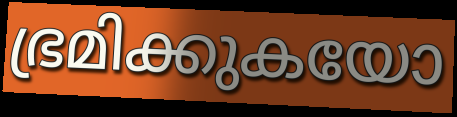
ഭ്രമിക്കുകയോ